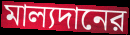
মাল্যদানের